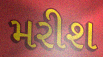
મરીશ